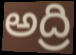
అద్రి